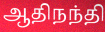
ஆதிநந்தி